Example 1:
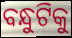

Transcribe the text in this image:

ବନ୍ଧୁଟିକୁ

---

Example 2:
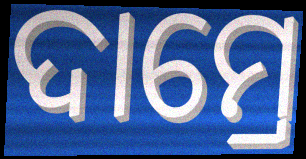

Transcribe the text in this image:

ଦାମ୍ରେ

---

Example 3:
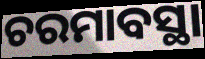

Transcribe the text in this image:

ଚରମାବସ୍ଥା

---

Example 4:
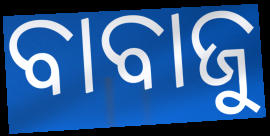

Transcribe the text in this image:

ବାବାଜୁ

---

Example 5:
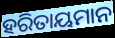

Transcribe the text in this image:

ହରିତାୟମାନ